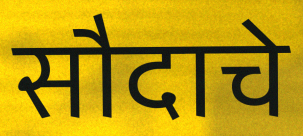
सौदाचे